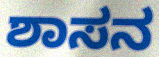
ಶಾಸನ